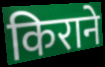
किराने